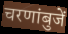
चरणांबुजें